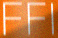
FFI